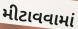
મીટાવવામાં